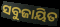
ସବୁଜାୟିତ